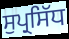
ਸੁਪ੍ਰਸਿੱਧ